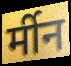
र्मीन